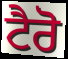
ਟੈਰੋ